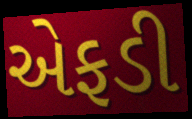
એફડી